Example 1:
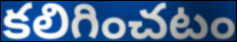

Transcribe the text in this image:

కలిగించటం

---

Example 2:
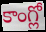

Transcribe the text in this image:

కాంగ్లో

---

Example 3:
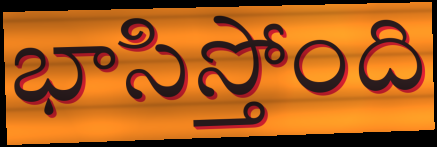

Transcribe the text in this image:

భాసిస్తోంది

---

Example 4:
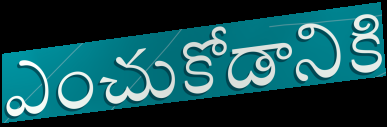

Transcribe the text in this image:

ఎంచుకోడానికి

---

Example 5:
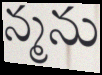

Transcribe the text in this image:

న్మను